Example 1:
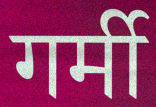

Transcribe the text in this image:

गर्मी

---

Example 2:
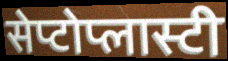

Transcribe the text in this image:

सेप्टोप्लास्टी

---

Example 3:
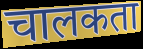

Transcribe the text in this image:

चालकता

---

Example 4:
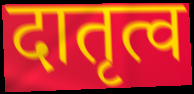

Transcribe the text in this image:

दातृत्व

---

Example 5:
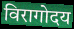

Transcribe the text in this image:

विरागोदय